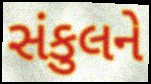
સંકુલને